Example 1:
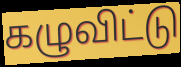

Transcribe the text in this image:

கழுவிட்டு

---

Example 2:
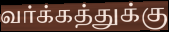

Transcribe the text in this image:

வர்க்கத்துக்கு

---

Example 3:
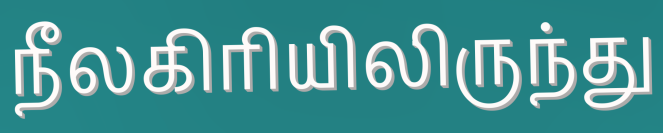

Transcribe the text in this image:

நீலகிரியிலிருந்து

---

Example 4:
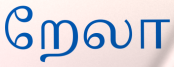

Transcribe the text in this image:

றேலா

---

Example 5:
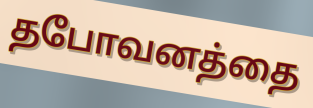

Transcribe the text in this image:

தபோவனத்தை